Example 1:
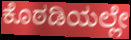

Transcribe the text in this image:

ಕೊಠಡಿಯಲ್ಲೇ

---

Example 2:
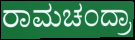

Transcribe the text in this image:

ರಾಮಚಂದ್ರಾ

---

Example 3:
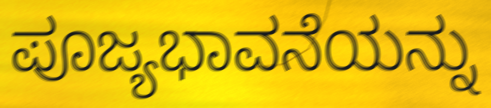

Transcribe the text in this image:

ಪೂಜ್ಯಭಾವನೆಯನ್ನು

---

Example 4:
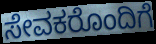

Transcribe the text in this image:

ಸೇವಕರೊಂದಿಗೆ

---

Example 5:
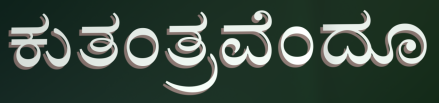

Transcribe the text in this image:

ಕುತಂತ್ರವೆಂದೂ